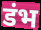
डंभ